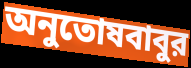
অনুতোষবাবুর